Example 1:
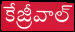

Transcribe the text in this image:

కేజ్రీవాల్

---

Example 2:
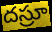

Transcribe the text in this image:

దస్రూ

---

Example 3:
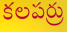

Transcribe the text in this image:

కలపర్రు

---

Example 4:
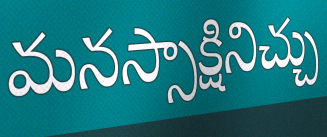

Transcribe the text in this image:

మనస్సాక్షినిచ్చు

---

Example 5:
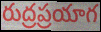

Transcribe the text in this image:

రుద్రప్రయాగ